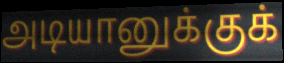
அடியானுக்குக்